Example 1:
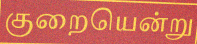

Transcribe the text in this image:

குறையென்று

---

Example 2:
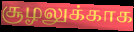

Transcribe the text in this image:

சூழலுக்காக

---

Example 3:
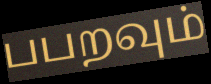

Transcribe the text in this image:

பபறவும்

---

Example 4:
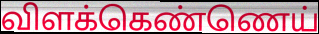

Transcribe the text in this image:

விளக்கெண்ணெய்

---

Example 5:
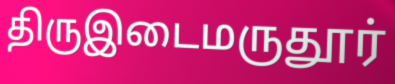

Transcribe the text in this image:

திருஇடைமருதூர்